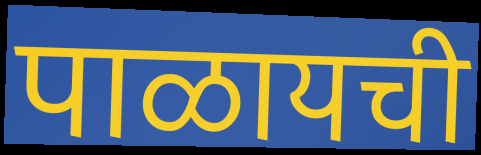
पाळायची